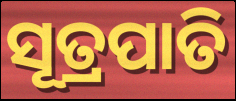
ସୂତ୍ରପାତି